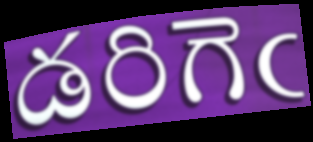
డరిగెఁ